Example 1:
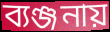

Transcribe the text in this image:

ব্যঞ্জনায়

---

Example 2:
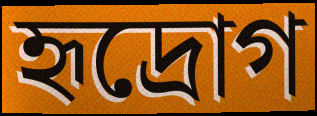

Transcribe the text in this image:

হৃদ্রোগ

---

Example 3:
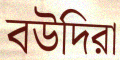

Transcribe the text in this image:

বউদিরা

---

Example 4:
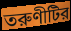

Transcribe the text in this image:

তরুণীটির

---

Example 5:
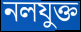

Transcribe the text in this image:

নলযুক্ত